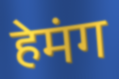
हेमंग